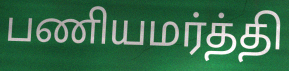
பணியமர்த்தி